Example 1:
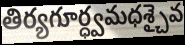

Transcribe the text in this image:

తిర్యగూర్ధ్వమధశ్చైవ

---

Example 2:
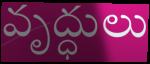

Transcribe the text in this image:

వృద్ధులు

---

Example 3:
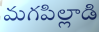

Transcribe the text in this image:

మగపిల్లాడి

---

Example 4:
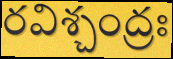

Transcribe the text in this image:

రవిశ్చంద్రః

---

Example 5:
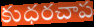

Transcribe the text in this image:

కుధరచాప